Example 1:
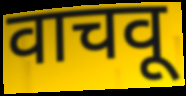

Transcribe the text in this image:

वाचवू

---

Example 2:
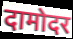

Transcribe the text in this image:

दामोदर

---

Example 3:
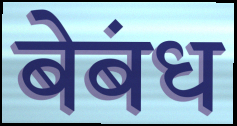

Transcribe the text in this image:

बेबंध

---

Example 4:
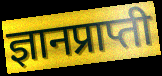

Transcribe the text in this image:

ज्ञानप्राप्ती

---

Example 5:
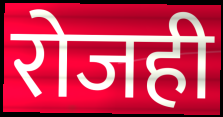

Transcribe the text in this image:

रोजही